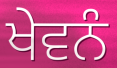
ਖੇਵਨੰ